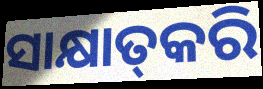
ସାକ୍ଷାତ୍‌କରି